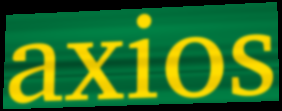
axios